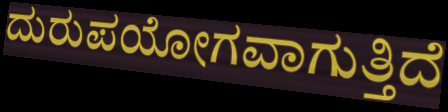
ದುರುಪಯೋಗವಾಗುತ್ತಿದೆ